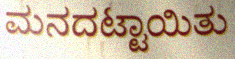
ಮನದಟ್ಟಾಯಿತು